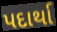
પદાર્થા